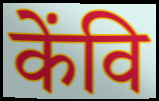
केंवि